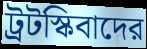
ট্রটস্কিবাদের